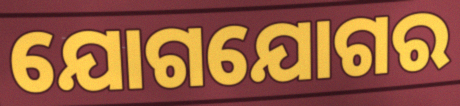
ଯୋଗଯୋଗର